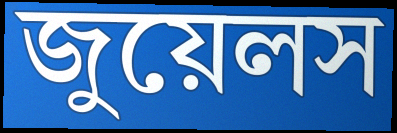
জুয়েলস